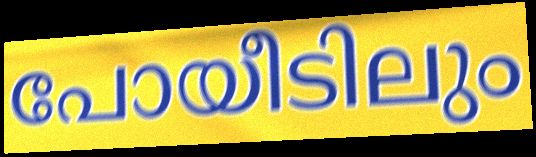
പോയീടിലും